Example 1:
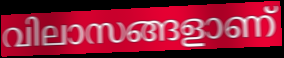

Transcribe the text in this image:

വിലാസങ്ങളാണ്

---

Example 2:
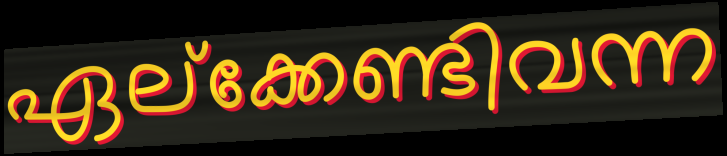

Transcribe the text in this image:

ഏല്ക്കേണ്ടിവന്ന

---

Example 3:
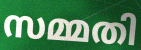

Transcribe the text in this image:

സമ്മതി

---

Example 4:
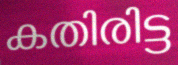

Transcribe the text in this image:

കതിരിട്ട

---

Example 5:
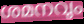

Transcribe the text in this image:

ശമനവും